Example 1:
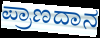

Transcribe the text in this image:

ಪ್ರಾಣದಾನ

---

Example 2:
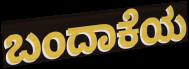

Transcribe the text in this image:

ಬಂದಾಕೆಯ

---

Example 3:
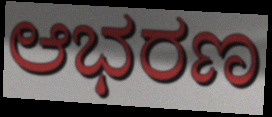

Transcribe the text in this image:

ಆಭರಣ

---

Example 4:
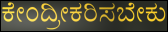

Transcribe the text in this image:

ಕೇಂದ್ರೀಕರಿಸಬೇಕು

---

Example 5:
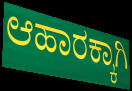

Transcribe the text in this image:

ಆಹಾರಕ್ಕಾಗಿ